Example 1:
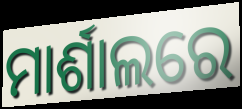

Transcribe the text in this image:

ମାର୍ଶାଲରେ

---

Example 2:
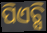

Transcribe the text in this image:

ପିଏଚ୍ସି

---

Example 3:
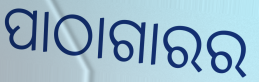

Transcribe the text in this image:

ପାଠାଗାରର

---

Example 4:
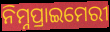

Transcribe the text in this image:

ନିମ୍ନପ୍ରାଇମେରୀ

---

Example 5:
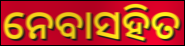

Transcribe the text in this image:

ନେବାସହିତ